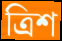
ত্ৰিশ